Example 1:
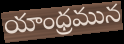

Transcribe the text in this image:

యాంధ్రమున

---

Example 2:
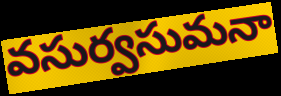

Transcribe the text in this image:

వసుర్వసుమనా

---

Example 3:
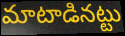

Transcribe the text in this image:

మాటాడినట్టు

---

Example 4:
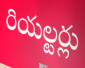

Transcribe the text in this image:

రియల్టర్లు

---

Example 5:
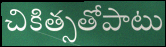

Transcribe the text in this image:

చికిత్సతోపాటు